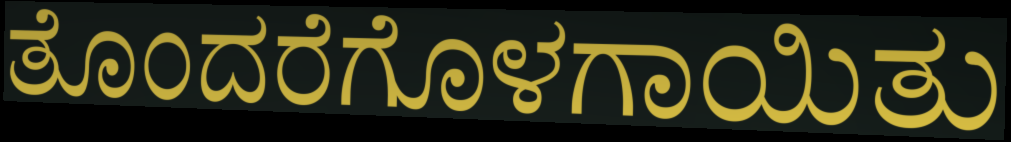
ತೊಂದರೆಗೊಳಗಾಯಿತು